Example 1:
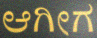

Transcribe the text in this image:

ಆಗೀಗ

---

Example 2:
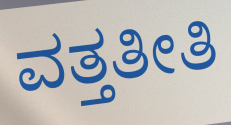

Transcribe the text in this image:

ವತ್ತತೀತಿ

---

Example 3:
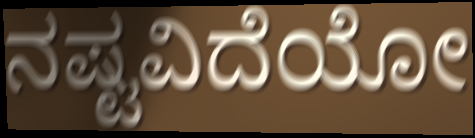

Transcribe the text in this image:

ನಷ್ಟವಿದೆಯೋ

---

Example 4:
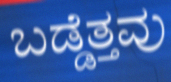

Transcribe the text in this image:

ಬಡ್ಡೆತ್ತವು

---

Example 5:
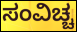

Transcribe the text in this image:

ಸಂವಿಚ್ಚ